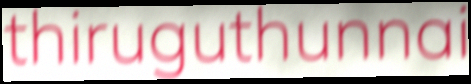
thiruguthunnai